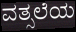
ವತ್ಸಲೆಯ